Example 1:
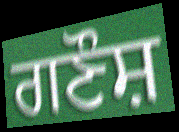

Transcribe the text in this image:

ਗਣੌਸ਼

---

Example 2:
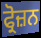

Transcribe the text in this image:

ਫ੍ਰੋਜ਼ਨ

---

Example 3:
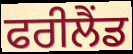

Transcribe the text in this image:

ਫਰੀਲੈਂਡ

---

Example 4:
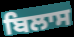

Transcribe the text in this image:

ਬਿਲਾਸ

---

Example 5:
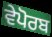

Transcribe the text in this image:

ਵੇਪੋਰਬ